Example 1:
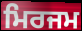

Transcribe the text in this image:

ਮਿਰਜਮ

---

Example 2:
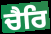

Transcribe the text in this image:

ਚੈਰਿ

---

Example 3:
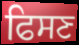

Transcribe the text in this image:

ਫਿਸਣ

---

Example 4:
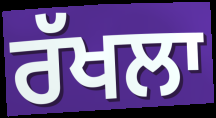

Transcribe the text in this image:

ਰੱਖਲਾ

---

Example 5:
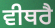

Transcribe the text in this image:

ਵੀਥਰੈ